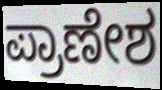
ಪ್ರಾಣೇಶ